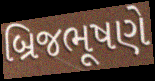
બ્રિજભૂષણે